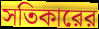
সতিকারের